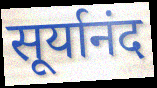
सूर्यानंद